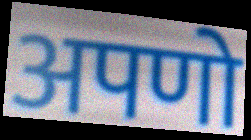
अपणो